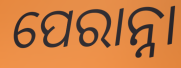
ପେରାନ୍ନା